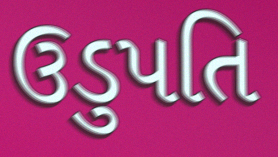
ઉડુપતિ